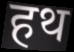
हथ